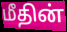
மீதின்